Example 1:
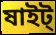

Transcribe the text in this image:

ষাইট্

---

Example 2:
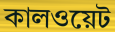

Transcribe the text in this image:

কালওয়েট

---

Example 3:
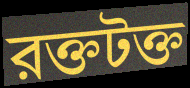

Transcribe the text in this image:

রক্তটক্ত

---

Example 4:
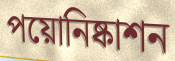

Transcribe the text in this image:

পয়োনিষ্কাশন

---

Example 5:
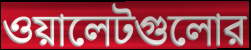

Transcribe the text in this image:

ওয়ালেটগুলোর